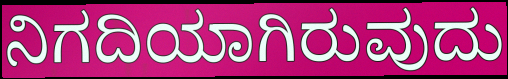
ನಿಗದಿಯಾಗಿರುವುದು